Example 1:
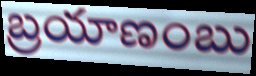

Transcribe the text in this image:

బ్రయాణంబు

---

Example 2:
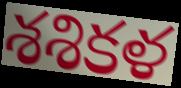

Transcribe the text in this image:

శశికళ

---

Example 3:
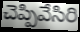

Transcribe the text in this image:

చెప్పివేసిరి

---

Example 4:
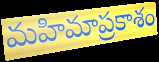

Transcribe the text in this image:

మహిమాప్రకాశం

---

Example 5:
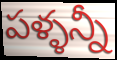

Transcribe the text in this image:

పళ్ళన్నీ